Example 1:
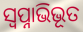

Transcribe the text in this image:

ସ୍ଵପ୍ନାଭିଭୂତ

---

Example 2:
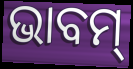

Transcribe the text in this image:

ଭାବମ୍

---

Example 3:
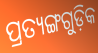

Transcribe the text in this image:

ପ୍ରତ୍ୟଙ୍ଗଗୁଡ଼ିକ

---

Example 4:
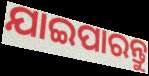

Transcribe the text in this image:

ଯାଇପାରନ୍ତୁ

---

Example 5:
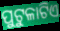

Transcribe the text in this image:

ପୁଟୁଳାଟିଏ